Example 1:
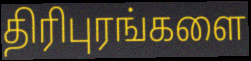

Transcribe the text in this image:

திரிபுரங்களை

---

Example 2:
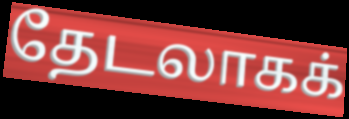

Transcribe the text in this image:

தேடலாகக்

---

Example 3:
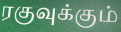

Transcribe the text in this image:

ரகுவுக்கும்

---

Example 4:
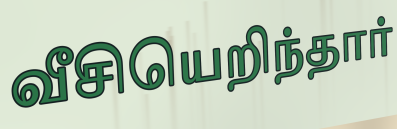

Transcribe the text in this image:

வீசியெறிந்தார்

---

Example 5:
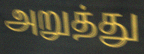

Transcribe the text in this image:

அறுத்து